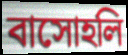
বাসোহলি